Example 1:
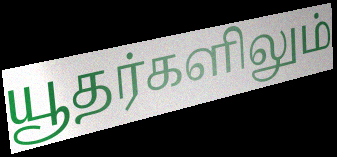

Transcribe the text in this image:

யூதர்களிலும்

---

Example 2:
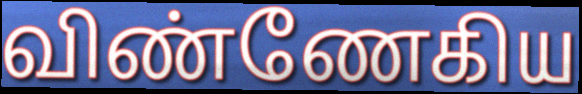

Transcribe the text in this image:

விண்ணேகிய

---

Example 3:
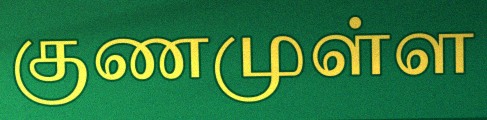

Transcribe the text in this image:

குணமுள்ள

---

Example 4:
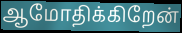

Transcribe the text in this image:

ஆமோதிக்கிறேன்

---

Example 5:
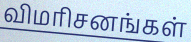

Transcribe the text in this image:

விமரிசனங்கள்